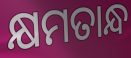
କ୍ଷମତାନ୍ଧ